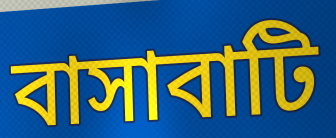
বাসাবাটি